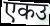
एकउ